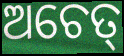
ଅଚେତ୍